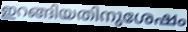
ഇറങ്ങിയതിനുശേഷം